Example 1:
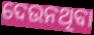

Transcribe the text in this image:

ଦେଉନଥିବା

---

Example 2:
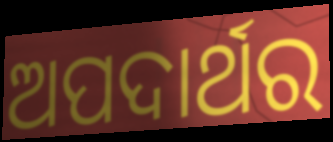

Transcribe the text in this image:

ଅପଦାର୍ଥର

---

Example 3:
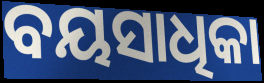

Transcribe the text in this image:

ବୟସାଧିକା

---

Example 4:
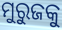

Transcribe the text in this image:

ମୁରୁଜକୁ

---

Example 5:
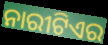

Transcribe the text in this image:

ନାରୀଟିଏର